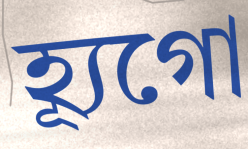
হ্যূগো